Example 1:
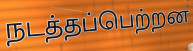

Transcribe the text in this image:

நடத்தப்பெற்றன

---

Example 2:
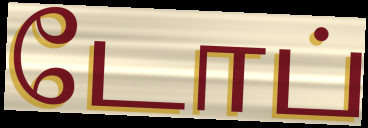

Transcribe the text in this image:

டோப்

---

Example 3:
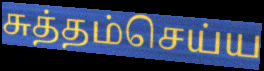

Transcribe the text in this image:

சுத்தம்செய்ய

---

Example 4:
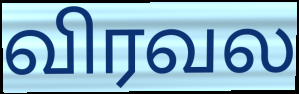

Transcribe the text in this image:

விரவல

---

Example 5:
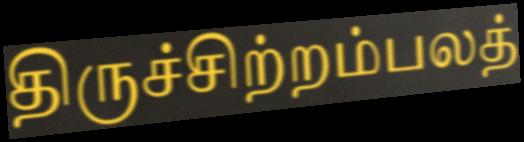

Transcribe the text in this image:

திருச்சிற்றம்பலத்